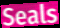
Seals